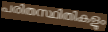
പരിതസ്ഥിതികളും